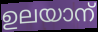
ഉലയാന്